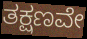
ತಕ್ಷಣವೇ